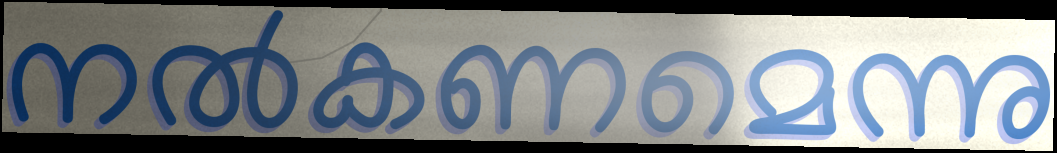
നൽകണമെന്നു